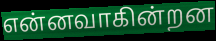
என்னவாகின்றன